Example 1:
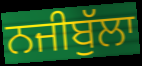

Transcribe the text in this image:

ਨਜੀਬੁੱਲਾ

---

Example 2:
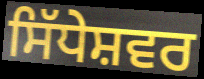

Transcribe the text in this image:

ਸਿੱਧੇਸ਼ਵਰ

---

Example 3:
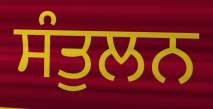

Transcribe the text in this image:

ਸੰਤੁਲਨ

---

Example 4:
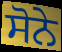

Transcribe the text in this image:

ਸੋਨੇ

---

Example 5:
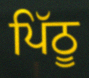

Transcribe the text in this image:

ਪਿੱਠੂ